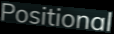
Positional